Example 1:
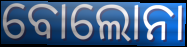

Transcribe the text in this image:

ବୋଲୋନା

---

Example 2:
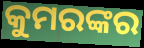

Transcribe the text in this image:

କୁମରଙ୍କର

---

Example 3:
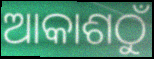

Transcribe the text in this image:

ଆକାଶଠୁଁ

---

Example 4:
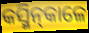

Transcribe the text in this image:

କସ୍ମିନ୍‍କାଳେ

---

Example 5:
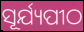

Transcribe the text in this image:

ସୂର୍ଯ୍ୟପୀଠ